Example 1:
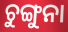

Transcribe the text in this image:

ଚୁଙ୍ଗୁନା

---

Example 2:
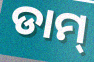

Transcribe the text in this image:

ଡାମ୍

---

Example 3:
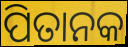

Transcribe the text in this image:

ପିତାନକ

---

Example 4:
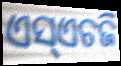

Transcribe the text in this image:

ଏସ୍ଏଚଜି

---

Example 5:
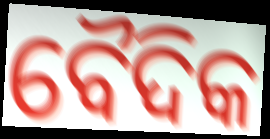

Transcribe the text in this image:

ବୈଦିକ